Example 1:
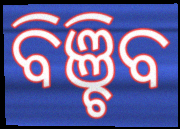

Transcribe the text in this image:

ବିଞ୍ଚିବ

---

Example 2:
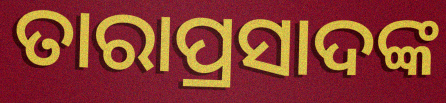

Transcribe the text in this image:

ତାରାପ୍ରସାଦଙ୍କ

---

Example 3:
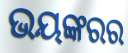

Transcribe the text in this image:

ଭୟଙ୍କରର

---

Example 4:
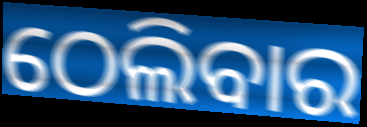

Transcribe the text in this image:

ଠେଲିବାର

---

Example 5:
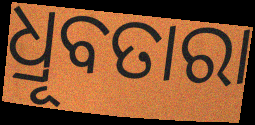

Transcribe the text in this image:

ଧ୍ରୂବତାରା